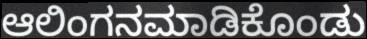
ಆಲಿಂಗನಮಾಡಿಕೊಂಡು